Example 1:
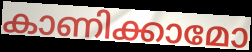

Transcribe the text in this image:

കാണിക്കാമോ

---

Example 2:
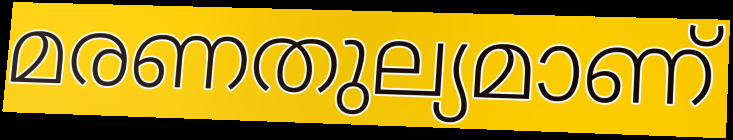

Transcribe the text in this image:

മരണതുല്യമാണ്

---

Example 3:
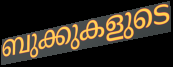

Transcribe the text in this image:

ബുക്കുകളുടെ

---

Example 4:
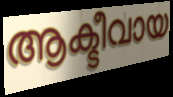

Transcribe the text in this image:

ആക്ടീവായ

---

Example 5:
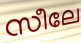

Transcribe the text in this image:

സീലേ